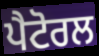
ਪੈਟੋਰਲ